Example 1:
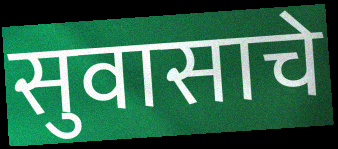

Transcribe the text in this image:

सुवासाचे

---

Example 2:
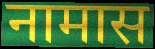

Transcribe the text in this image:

नामास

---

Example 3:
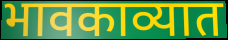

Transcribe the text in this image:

भावकाव्यात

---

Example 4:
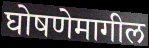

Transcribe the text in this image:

घोषणेमागील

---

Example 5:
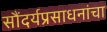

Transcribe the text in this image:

सौंदर्यप्रसाधनांचा